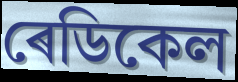
ৰেডিকেল